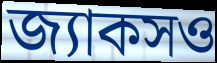
জ্যাকসও